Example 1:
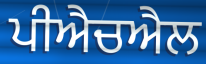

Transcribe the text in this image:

ਪੀਐਚਐਲ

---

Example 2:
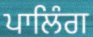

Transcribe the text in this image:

ਪਾਲਿੰਗ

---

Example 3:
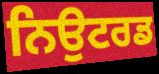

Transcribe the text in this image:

ਨਿਉਟਰਡ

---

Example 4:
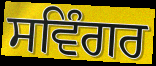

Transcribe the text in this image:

ਸਵਿੰਗਰ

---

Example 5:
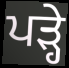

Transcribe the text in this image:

ਪੜ੍ਹੇ